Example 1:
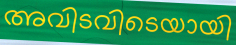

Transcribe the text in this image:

അവിടവിടെയായി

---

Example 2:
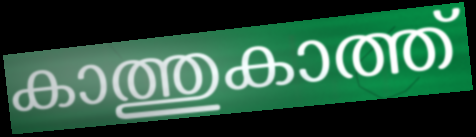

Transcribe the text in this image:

കാത്തുകാത്ത്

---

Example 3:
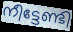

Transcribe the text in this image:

നീട്ടേണ്ടി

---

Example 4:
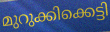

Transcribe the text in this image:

മുറുക്കിക്കെട്ടി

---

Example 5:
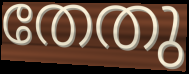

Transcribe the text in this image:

തേതു